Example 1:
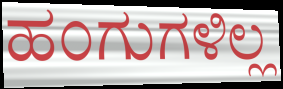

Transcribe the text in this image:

ಹಂಗುಗಳಿಲ್ಲ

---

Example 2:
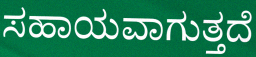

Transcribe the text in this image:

ಸಹಾಯವಾಗುತ್ತದೆ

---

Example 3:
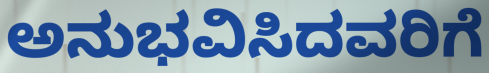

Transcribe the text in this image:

ಅನುಭವಿಸಿದವರಿಗೆ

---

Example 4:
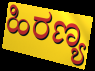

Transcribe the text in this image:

ಹಿರಣ್ಯ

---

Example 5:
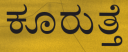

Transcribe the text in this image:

ಕೂರುತ್ತೆ